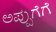
ಅಪ್ಪುಗೆಗೆ